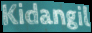
Kidangil